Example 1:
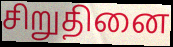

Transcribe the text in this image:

சிறுதினை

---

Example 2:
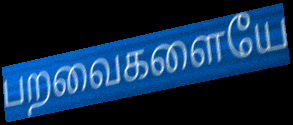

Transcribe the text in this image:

பறவைகளையே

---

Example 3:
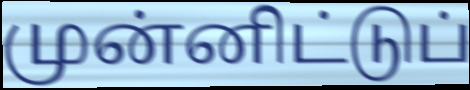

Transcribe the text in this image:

முன்னிட்டுப்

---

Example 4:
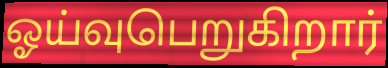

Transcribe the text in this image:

ஓய்வுபெறுகிறார்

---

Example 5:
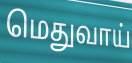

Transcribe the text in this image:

மெதுவாய்